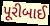
પૂરીબાઈ